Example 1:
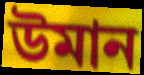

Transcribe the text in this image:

উমান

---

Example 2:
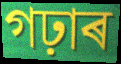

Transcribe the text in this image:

গঢ়াৰ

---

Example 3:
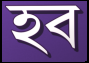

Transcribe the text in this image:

হব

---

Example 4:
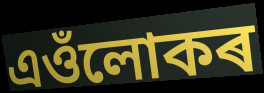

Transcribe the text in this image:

এওঁলোকৰ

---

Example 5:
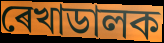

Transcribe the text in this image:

ৰেখাডালক